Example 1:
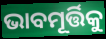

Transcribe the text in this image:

ଭାବମୂର୍ତ୍ତିକୁ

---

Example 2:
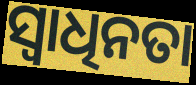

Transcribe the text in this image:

ସ୍ଵାଧିନତା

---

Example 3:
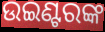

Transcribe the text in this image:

ଉଇଣ୍ଟରଙ୍କ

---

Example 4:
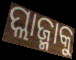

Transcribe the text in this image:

ପ୍ଲାଜ୍ମାକୁ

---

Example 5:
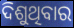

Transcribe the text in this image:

ଦିଶୁଥିବାର